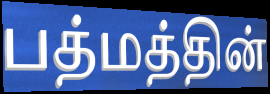
பத்மத்தின்